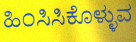
ಹಿಂಸಿಸಿಕೊಳ್ಳುವ